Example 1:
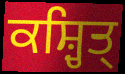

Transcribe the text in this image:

ਕਸ਼੍ਚਿਤ੍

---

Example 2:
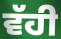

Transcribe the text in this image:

ਵੱਹੀ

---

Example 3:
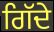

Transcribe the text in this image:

ਗਿੱਦੇ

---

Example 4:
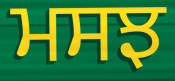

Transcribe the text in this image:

ਮਸਝ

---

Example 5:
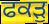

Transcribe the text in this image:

ਫਕੜੁ